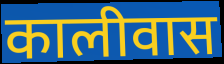
कालीवास